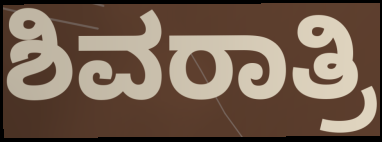
ಶಿವರಾತ್ರಿ